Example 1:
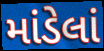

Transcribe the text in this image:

માંડેલાં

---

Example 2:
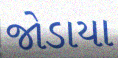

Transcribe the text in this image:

જોડાયા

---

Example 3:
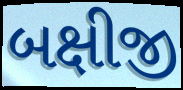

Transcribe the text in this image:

બક્ષીજી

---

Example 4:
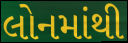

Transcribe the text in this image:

લોનમાંથી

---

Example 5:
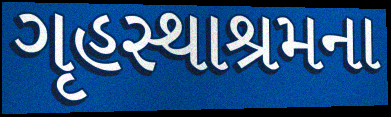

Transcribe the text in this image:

ગૃહસ્થાશ્રમના